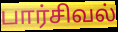
பார்சிவல்